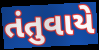
તંતુવાયે